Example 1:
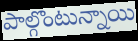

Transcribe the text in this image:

పాల్గొంటున్నాయి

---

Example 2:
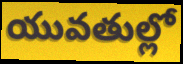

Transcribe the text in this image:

యువతుల్లో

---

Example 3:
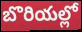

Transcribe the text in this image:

బొరియల్లో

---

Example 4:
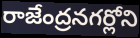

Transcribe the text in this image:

రాజేంద్రనగర్లోని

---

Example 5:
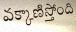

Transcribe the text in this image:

వక్కాణిస్తోంది